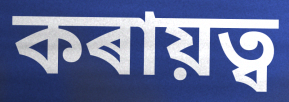
কৰায়ত্ব